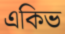
একিভ